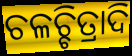
ଚଳଚ୍ଚିତ୍ରାଦି